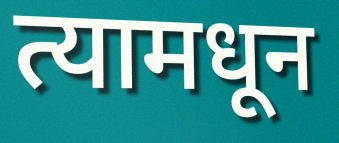
त्यामधून